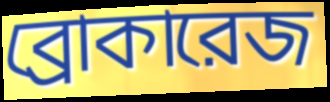
ব্রোকারেজ